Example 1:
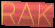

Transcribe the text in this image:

RAK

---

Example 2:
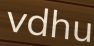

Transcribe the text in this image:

vdhu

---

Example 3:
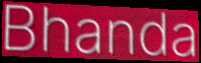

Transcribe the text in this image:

Bhanda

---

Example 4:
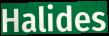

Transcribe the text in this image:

Halides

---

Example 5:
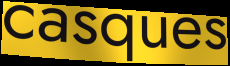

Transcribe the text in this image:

casques